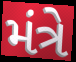
મંત્રે